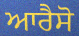
ਆਰੈਸੋ